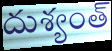
దుశ్యంత్